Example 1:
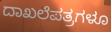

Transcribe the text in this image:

ದಾಖಲೆಪತ್ರಗಳೂ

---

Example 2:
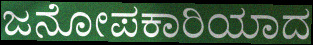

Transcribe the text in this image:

ಜನೋಪಕಾರಿಯಾದ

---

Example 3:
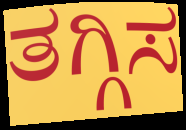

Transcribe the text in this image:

ತಗ್ಗಿಸ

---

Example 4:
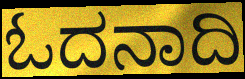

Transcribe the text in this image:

ಓದನಾದಿ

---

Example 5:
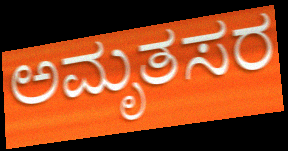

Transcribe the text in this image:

ಅಮೃತಸರ